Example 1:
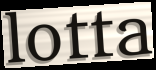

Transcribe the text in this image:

lotta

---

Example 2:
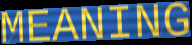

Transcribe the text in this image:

MEANING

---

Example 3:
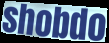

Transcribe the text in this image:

shobdo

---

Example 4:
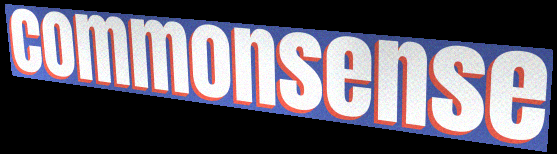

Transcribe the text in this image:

commonsense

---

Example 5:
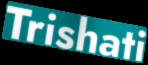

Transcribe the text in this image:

Trishati